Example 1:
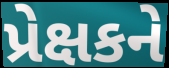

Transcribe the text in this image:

પ્રેક્ષકને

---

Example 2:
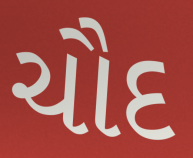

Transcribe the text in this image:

ચૌદ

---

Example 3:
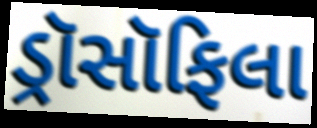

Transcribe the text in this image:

ડ્રૉસૉફિલા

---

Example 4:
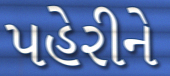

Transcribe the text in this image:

પહેરીને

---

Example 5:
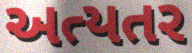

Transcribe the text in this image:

અત્યતર